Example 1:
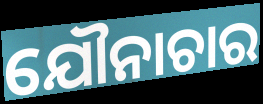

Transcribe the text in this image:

ଯୌନାଚାର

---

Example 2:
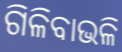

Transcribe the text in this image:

ଗିଳିବାଭଳି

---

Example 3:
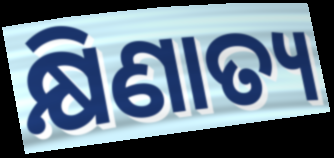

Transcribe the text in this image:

କ୍ଷିଣାତ୍ୟ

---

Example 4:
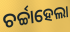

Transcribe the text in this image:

ଚର୍ଚ୍ଚାହେଲା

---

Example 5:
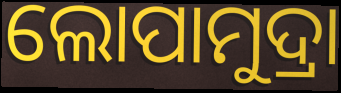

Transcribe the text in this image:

ଲୋପାମୁଦ୍ରା